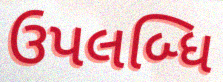
ઉપલબ્ધિ